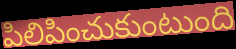
పిలిపించుకుంటుంది